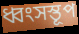
ধ্বংসস্তূপ